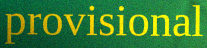
provisional